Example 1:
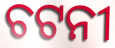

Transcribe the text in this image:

ଚଟନୀ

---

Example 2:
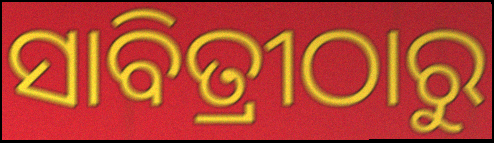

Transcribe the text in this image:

ସାବିତ୍ରୀଠାରୁ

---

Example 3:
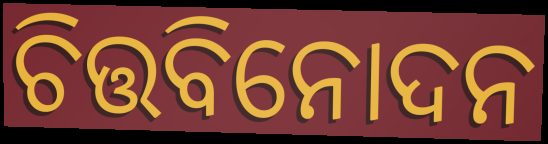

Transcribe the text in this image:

ଚିତ୍ତବିନୋଦନ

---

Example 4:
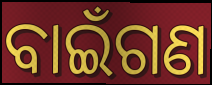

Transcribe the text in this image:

ବାଇଁଗଣ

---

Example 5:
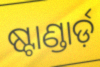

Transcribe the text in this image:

ଷ୍ଟାଣ୍ଡାର୍ଡ଼